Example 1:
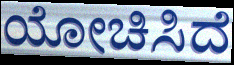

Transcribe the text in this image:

ಯೋಚಿಸಿದೆ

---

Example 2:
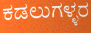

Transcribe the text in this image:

ಕಡಲುಗಳ್ಳರ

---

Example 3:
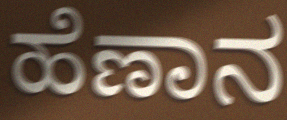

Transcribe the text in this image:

ಹೆಣಾನ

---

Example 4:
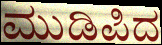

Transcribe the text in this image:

ಮುಡಿಪಿದ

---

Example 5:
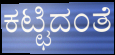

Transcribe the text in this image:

ಕಟ್ಟಿದಂತೆ